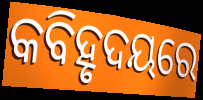
କବିହୃଦୟରେ